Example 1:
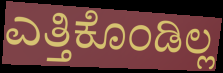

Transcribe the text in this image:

ಎತ್ತಿಕೊಂಡಿಲ್ಲ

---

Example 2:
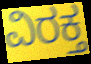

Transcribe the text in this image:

ವಿರಕ್ತ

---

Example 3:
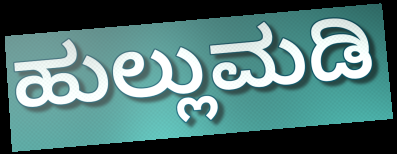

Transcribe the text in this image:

ಹುಲ್ಲುಮಡಿ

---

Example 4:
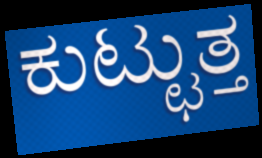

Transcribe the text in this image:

ಕುಟ್ಟುತ್ತ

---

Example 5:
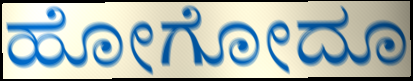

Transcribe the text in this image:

ಹೋಗೋದೂ